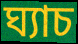
ঘ্যাচ